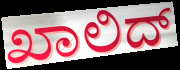
ಖಾಲಿದ್